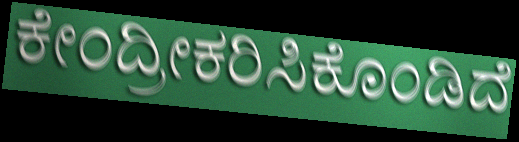
ಕೇಂದ್ರೀಕರಿಸಿಕೊಂಡಿದೆ